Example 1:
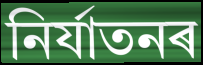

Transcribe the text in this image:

নিৰ্যাতনৰ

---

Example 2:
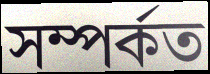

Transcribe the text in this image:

সম্পৰ্কত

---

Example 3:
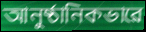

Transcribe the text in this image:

আনুষ্ঠানিকভাৱে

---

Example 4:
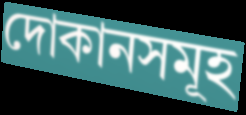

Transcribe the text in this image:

দোকানসমূহ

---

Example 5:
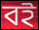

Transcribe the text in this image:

বই